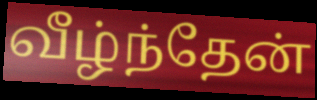
வீழ்ந்தேன்